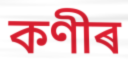
কণীৰ